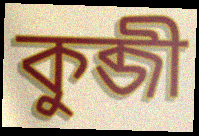
কুব্জী